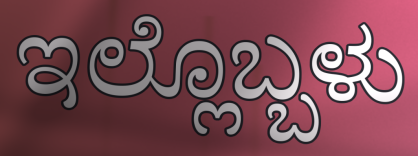
ಇಲ್ಲೊಬ್ಬಳು